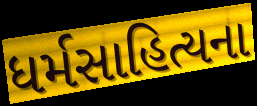
ધર્મસાહિત્યના